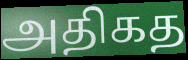
அதிகத